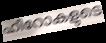
ഹീറോകളുടെ